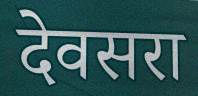
देवसरा